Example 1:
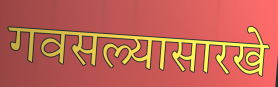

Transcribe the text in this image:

गवसल्यासारखे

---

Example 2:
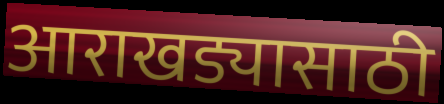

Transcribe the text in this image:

आराखड्यासाठी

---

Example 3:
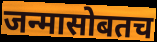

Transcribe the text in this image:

जन्मासोबतच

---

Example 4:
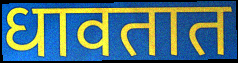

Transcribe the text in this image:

धावतात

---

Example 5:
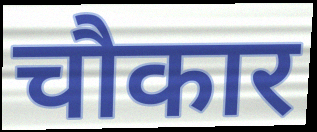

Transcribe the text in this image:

चौकार